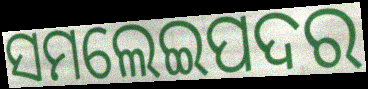
ସମଲେଇପଦର